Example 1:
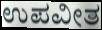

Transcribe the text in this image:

ಉಪವೀತ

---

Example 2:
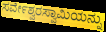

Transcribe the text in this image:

ಸರ್ವೇಶ್ವರಸ್ವಾಮಿಯನ್ನು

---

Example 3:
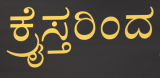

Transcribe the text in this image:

ಕ್ರೈಸ್ತರಿಂದ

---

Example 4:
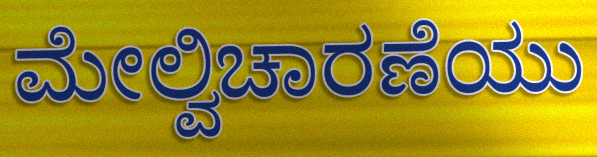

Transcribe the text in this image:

ಮೇಲ್ವಿಚಾರಣೆಯು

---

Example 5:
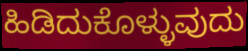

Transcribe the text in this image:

ಹಿಡಿದುಕೊಳ್ಳುವುದು